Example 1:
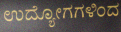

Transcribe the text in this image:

ಉದ್ಯೋಗಗಳಿಂದ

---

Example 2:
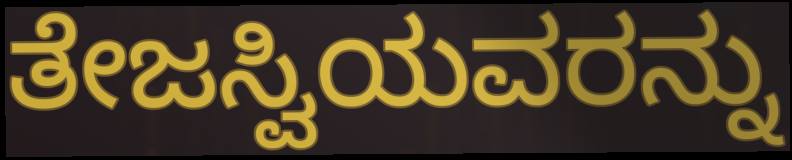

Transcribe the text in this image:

ತೇಜಸ್ವಿಯವರನ್ನು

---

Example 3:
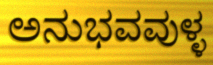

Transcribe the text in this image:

ಅನುಭವವುಳ್ಳ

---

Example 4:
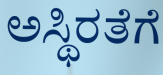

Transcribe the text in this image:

ಅಸ್ಥಿರತೆಗೆ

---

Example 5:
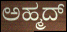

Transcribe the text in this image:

ಅಹ್ಮದ್